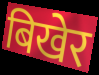
बिखेर